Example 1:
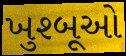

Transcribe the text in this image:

ખુશ્બૂઓ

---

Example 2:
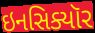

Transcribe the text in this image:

ઇનસિક્યૉર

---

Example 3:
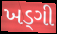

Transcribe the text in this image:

ખડ્ગી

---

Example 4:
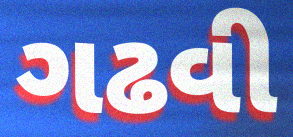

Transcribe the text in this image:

ગઢવી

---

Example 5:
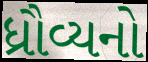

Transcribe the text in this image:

ધ્રૌવ્યનો